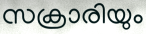
സക്രാരിയും